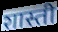
शास्ती